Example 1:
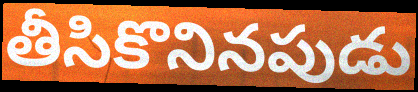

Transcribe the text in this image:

తీసికొనినపుడు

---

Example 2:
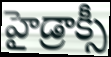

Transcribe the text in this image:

హైడ్రాక్సీ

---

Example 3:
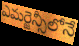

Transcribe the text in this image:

ఎమర్జెన్సీలోనే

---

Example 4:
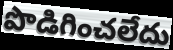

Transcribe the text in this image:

పొడిగించలేదు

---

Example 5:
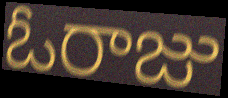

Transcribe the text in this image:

ఓరాజు